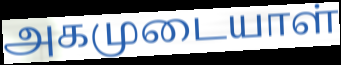
அகமுடையாள்